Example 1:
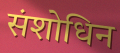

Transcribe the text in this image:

संशोधिन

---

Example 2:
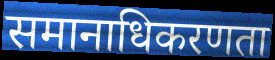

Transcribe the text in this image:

समानाधिकरणता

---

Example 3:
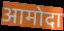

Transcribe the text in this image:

आमोदा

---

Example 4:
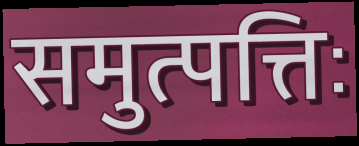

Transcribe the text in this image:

समुत्पत्तिः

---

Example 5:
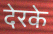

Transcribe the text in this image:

देरके